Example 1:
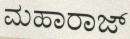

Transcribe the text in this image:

ಮಹಾರಾಜ್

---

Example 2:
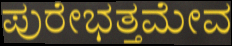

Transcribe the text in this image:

ಪುರೇಭತ್ತಮೇವ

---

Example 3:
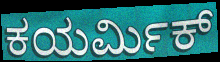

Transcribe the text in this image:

ಕಯರ್ಮಿಕ್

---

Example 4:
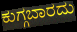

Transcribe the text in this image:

ಕುಗ್ಗಬಾರದು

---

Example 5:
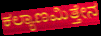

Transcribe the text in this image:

ಕಲ್ಯಾಣಮಿತ್ತೇನ